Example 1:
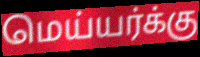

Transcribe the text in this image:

மெய்யர்க்கு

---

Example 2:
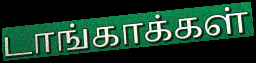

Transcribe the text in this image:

டாங்காக்கள்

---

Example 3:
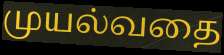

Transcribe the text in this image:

முயல்வதை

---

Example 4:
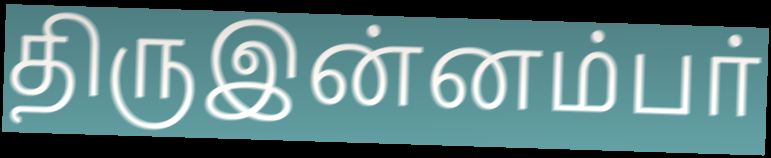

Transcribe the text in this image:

திருஇன்னம்பர்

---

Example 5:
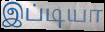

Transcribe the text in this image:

இப்டியா